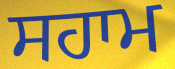
ਸਹਾਮ